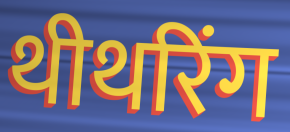
थीथरिंग